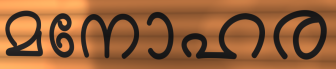
മനോഹര